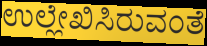
ಉಲ್ಲೇಖಿಸಿರುವಂತೆ